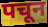
पचून